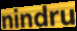
nindru